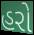
હરો